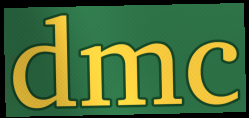
dmc